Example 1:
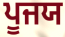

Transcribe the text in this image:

ਪੂਜਯ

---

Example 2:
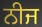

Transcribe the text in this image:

ਨੀਜ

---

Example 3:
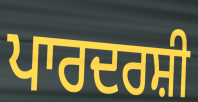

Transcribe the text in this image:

ਪਾਰਦਰਸ਼ੀ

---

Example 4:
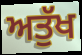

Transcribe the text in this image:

ਅਤੁੱਖ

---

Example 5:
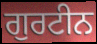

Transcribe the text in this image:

ਗੁਰਟੀਨ